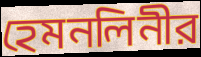
হেমনলিনীর